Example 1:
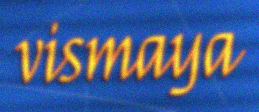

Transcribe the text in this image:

vismaya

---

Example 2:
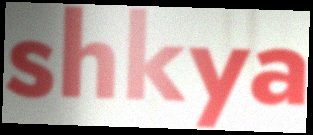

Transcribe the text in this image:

shkya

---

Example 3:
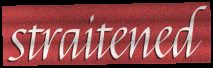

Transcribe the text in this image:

straitened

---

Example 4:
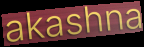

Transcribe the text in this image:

akashna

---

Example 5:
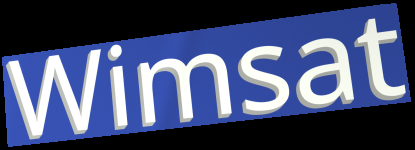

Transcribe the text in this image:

Wimsat